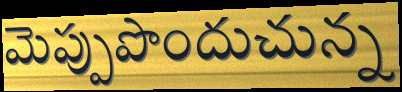
మెప్పుపొందుచున్న